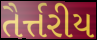
તૈર્ત્તરીય